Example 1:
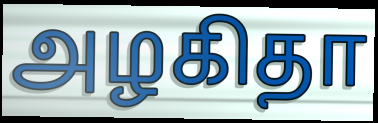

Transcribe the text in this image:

அழகிதா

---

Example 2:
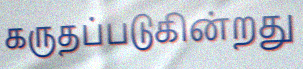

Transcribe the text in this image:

கருதப்படுகின்றது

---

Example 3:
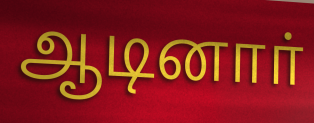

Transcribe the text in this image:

ஆடினார்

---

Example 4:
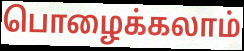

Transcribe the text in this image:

பொழைக்கலாம்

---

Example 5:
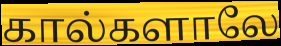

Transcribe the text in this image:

கால்களாலே